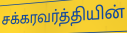
சக்கரவர்த்தியின்